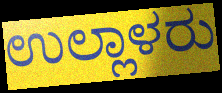
ಉಲ್ಲಾಳರು